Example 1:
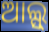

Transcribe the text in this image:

ଆଲ୍ସ୍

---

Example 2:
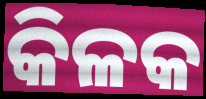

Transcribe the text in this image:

କିଳକ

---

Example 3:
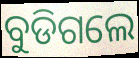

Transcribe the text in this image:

ବୁଡିଗଲେ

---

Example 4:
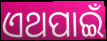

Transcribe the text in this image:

ଏଥପାଇଁ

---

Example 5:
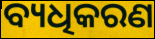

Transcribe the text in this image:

ବ୍ୟଧିକରଣ